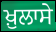
ਖ਼ੁਲਾਸੇ